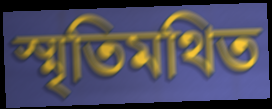
স্মৃতিমথিত